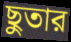
ছুতার